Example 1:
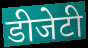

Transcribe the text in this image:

डीजेटी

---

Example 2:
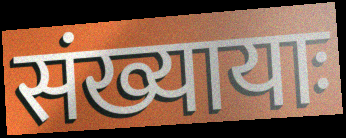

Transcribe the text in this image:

संख्यायाः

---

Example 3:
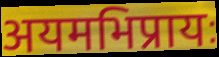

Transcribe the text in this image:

अयमभिप्रायः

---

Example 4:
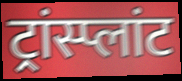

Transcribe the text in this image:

ट्रांस्प्लांट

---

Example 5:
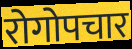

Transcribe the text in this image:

रोगोपचार